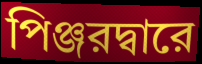
পিঞ্জরদ্বারে